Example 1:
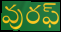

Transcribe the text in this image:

వురఫ్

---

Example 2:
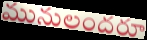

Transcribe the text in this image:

మునులందరూ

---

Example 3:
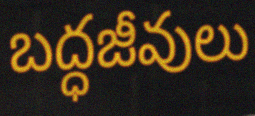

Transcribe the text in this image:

బద్ధజీవులు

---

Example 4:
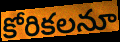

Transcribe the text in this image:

కోరికలనూ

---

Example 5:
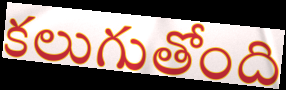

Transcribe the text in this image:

కలుగుతోంది